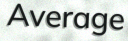
Average